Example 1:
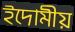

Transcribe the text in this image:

ইদোমীয়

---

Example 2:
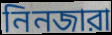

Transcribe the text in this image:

নিনজারা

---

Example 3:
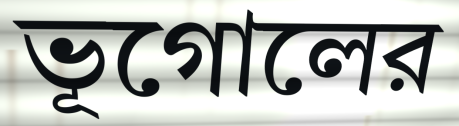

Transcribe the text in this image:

ভূগোলের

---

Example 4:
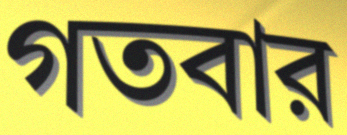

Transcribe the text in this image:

গতবার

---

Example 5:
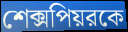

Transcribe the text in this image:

শেক্সপিয়রকে